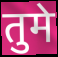
तुमे